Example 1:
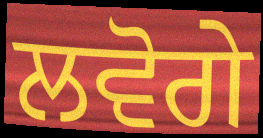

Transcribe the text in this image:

ਲਵੋਗੇ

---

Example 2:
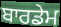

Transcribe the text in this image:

ਬਾਰਡੇਮ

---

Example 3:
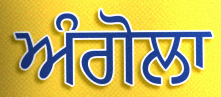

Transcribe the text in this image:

ਅੰਗੋਲਾ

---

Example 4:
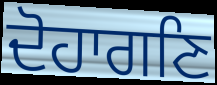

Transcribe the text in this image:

ਦੋਹਾਗਣਿ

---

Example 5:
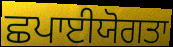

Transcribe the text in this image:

ਛਪਾਈਯੋਗਤਾ